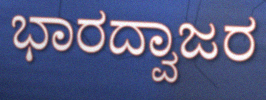
ಭಾರದ್ವಾಜರ